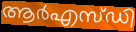
ആർഎസ്ഡി